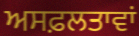
ਅਸਫ਼ਲਤਾਵਾਂ